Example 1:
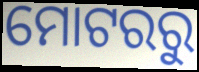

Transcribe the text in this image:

ମୋଟରରୁ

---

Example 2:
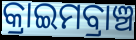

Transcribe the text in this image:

କ୍ରାଇମବ୍ରାଞ୍ଚ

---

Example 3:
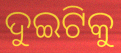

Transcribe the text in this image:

ଦୁଇଟିକୁ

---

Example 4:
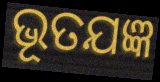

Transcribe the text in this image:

ଭୂତଯଜ୍ଞ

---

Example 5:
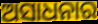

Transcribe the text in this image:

ଅସାଧନାର